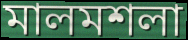
মালমশলা